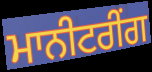
ਮਾਨੀਟਰੀਂਗ